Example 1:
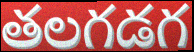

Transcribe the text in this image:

తలగడగ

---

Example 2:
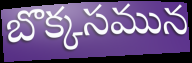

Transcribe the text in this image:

బొక్కసమున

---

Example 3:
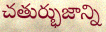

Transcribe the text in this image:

చతుర్భుజాన్ని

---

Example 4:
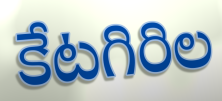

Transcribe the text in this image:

కేటగిరిల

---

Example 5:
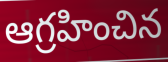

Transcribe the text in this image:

ఆగ్రహించిన